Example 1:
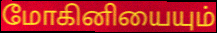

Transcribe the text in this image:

மோகினியையும்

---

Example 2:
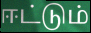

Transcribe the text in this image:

ஈட்டும்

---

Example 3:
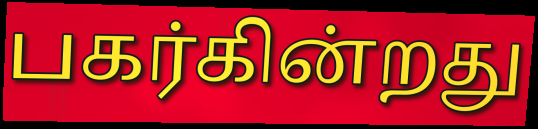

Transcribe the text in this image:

பகர்கின்றது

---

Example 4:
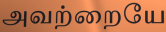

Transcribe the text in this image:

அவற்றையே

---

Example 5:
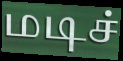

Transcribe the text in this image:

மடிச்